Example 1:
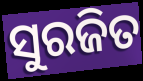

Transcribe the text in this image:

ସୁରଜିତ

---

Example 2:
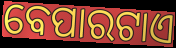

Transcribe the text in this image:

ବେପାରଟାଏ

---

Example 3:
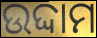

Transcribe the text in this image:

ଉଦ୍ଦାମ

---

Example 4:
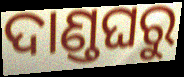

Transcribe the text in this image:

ଦାଣ୍ଡଘରୁ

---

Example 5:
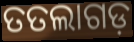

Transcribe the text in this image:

ତତଲାଗଡ଼